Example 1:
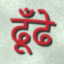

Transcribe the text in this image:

ढूँढे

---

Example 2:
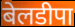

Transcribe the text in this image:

बेलडीपा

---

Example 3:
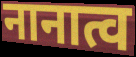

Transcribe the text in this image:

नानात्व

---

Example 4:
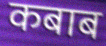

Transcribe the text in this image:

कबाब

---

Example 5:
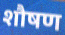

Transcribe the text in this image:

शौषण